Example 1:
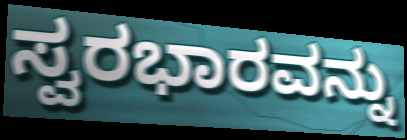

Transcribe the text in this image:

ಸ್ವರಭಾರವನ್ನು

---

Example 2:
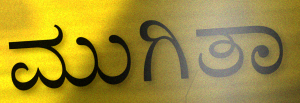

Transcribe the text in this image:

ಮುಗಿತಾ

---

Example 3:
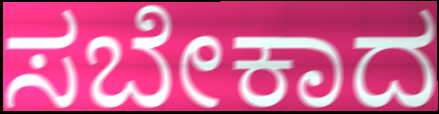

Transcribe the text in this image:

ಸಬೇಕಾದ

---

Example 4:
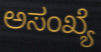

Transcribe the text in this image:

ಅಸಂಖ್ಯೆ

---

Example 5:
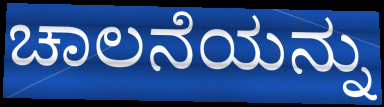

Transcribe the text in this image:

ಚಾಲನೆಯನ್ನು